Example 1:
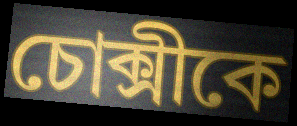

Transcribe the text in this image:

চোক্সীকে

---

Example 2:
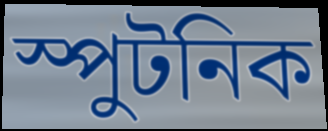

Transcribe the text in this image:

স্পুটনিক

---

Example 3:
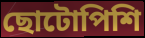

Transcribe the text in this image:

ছোটোপিশি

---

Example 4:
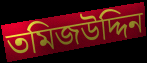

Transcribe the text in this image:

তমিজউদ্দিন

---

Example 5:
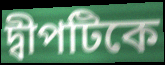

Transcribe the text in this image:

দ্বীপটিকে